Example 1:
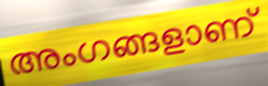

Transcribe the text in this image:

അംഗങ്ങളാണ്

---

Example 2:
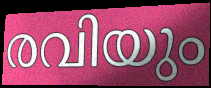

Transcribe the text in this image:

രവിയും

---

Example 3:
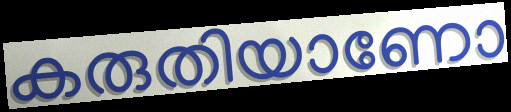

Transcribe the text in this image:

കരുതിയാണോ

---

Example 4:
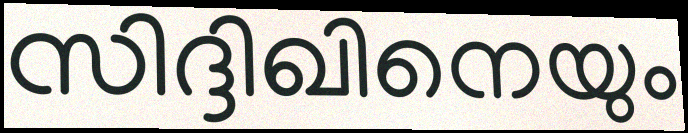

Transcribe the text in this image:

സിദ്ദിഖിനെയും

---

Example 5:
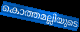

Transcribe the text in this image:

കൊത്തമല്ലിയുടെ